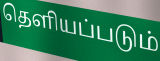
தெளியப்படும்